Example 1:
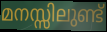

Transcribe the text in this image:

മനസ്സിലുണ്ട്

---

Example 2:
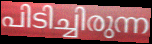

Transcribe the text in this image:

പിടിച്ചിരുന്ന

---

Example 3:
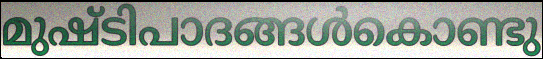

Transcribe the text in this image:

മുഷ്ടിപാദങ്ങൾകൊണ്ടു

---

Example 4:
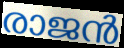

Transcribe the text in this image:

രാജൻ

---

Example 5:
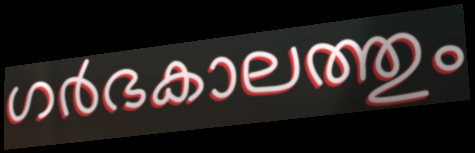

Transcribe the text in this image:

ഗർഭകാലത്തും